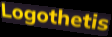
Logothetis